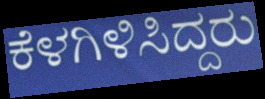
ಕೆಳಗಿಳಿಸಿದ್ದರು